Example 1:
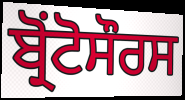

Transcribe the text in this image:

ਬ੍ਰੋਂਟੋਸੌਰਸ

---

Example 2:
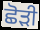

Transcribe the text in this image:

ਛੋੜੀ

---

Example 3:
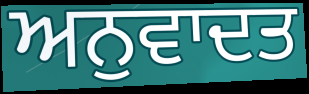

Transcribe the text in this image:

ਅਨੁਵਾਦਤ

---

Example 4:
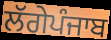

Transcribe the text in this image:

ਲੱਗੇਪੰਜਾਬ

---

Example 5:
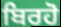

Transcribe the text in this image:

ਬਿਰਹੋ